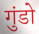
गुंडो